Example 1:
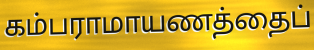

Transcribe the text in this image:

கம்பராமாயணத்தைப்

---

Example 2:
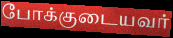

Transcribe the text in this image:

போக்குடையவர்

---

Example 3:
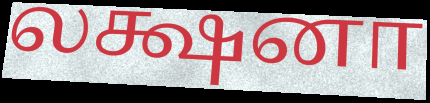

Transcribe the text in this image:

லக்ஷனா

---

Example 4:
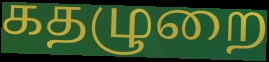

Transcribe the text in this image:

கதழுறை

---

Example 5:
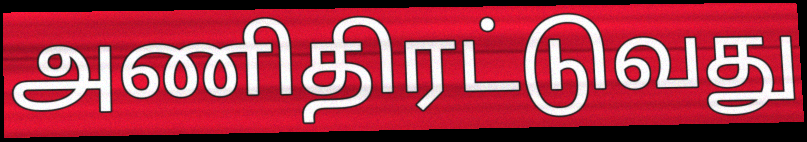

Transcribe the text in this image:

அணிதிரட்டுவது